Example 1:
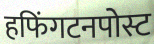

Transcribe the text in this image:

हफिंगटनपोस्ट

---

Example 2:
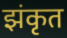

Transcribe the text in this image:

झंकृत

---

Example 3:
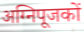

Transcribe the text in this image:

अग्निपूजकों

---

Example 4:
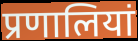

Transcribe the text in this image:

प्रणालियां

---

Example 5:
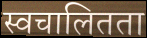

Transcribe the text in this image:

स्वचालितता